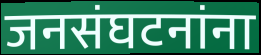
जनसंघटनांना